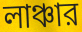
লাঞ্চার